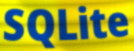
SQLite